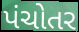
પંચોતર